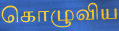
கொழுவிய